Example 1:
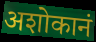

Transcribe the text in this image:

अशोकानं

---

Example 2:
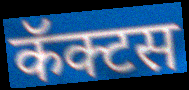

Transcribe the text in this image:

कॅक्टस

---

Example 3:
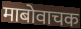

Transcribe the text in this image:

माबोवाचक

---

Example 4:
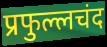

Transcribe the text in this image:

प्रफुल्लचंद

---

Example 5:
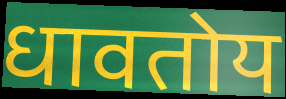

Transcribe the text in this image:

धावतोय